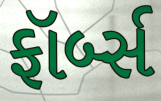
ફૉર્બ્સ